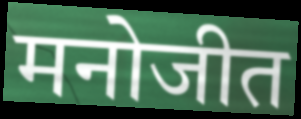
मनोजीत